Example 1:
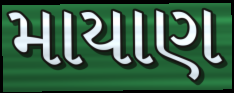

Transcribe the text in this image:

માયાણ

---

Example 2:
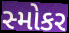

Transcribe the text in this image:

સ્મોકર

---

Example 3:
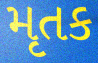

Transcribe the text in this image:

મૃતક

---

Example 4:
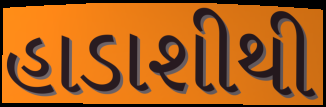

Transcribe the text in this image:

હાડાશીથી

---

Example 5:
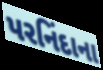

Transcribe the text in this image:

પરનિંદાના